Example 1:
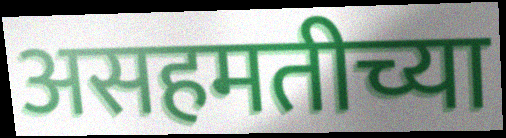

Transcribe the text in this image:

असहमतीच्या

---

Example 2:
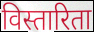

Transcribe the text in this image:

विस्तारिता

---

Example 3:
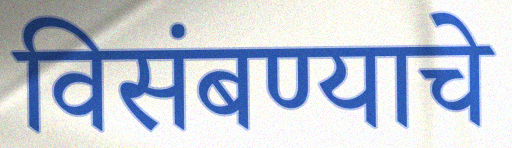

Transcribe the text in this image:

विसंबण्याचे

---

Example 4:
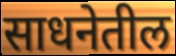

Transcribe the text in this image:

साधनेतील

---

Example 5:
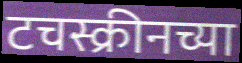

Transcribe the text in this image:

टचस्क्रीनच्या